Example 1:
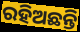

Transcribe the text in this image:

ରହିଅଛନ୍ତି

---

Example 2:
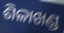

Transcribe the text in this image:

ଶିଳାଖଣ୍ଡ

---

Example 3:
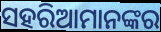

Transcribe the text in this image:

ସହରିଆମାନଙ୍କର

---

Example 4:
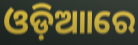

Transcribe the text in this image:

ଓଡ଼ିଆାରେ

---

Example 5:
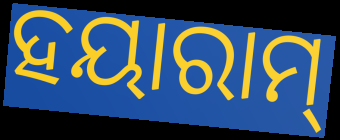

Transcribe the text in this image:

ହୟାରାମ୍